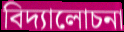
বিদ্যালোচনা